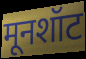
मूनशॉट